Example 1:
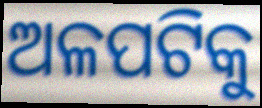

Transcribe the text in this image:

ଅଳପଟିକୁ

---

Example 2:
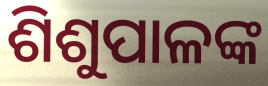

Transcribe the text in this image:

ଶିଶୁପାଳଙ୍କ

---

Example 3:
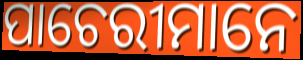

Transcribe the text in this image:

ପାଚେରୀମାନେ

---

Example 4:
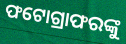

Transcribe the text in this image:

ଫଟୋଗ୍ରାଫରଙ୍କୁ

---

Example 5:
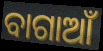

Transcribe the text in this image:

ବାଗାଆଁ